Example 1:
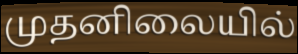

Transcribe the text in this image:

முதனிலையில்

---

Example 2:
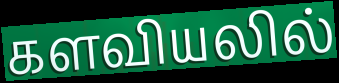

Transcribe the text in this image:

களவியலில்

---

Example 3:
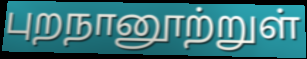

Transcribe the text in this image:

புறநானூற்றுள்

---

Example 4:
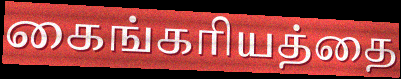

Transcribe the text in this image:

கைங்கரியத்தை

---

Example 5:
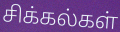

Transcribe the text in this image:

சிக்கல்கள்